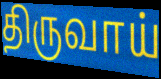
திருவாய்